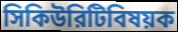
সিকিউরিটিবিষয়ক